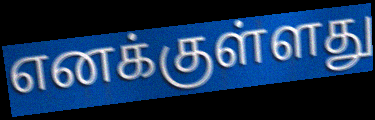
எனக்குள்ளது